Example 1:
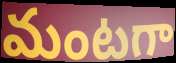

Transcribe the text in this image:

మంటగా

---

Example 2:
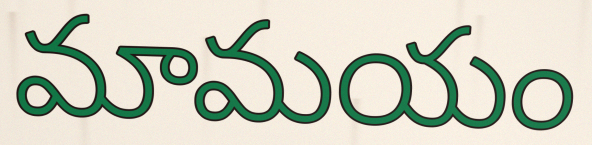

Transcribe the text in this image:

మామయం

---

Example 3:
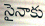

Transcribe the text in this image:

సైనాకు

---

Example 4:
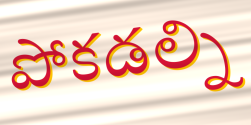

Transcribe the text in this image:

పోకడల్ని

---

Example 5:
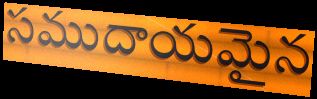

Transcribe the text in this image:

సముదాయమైన